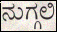
ನುಗ್ಗಲಿ